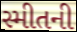
સ્મીતની